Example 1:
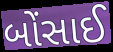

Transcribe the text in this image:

બોંસાઈ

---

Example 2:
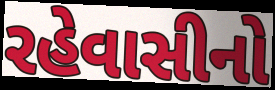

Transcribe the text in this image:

રહેવાસીનો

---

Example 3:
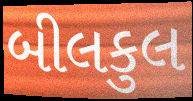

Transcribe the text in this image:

બીલકુલ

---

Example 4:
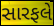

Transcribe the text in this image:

સારફલે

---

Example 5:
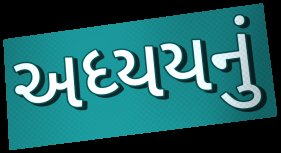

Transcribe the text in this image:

અધ્યયનું